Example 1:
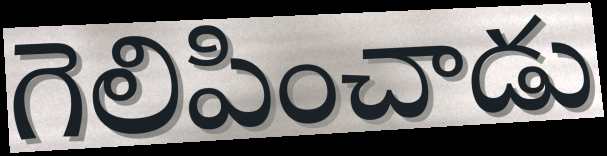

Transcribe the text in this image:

గెలిపించాడు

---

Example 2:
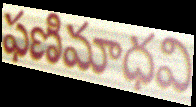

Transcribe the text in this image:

ఫణిమాధవి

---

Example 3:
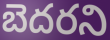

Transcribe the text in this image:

బెదరని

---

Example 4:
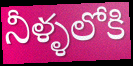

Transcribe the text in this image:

నీళ్ళలోకి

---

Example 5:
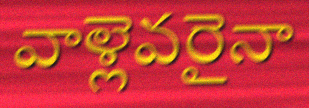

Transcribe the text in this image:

వాళ్లెవరైనా